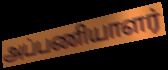
அப்பணியாளர்